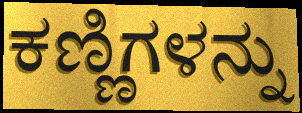
ಕಣ್ಣಿಗಳನ್ನು